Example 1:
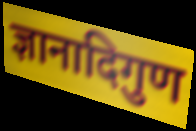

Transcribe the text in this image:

ज्ञानादिगुण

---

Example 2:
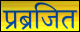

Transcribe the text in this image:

प्रब्रजित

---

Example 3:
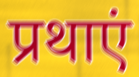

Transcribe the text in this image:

प्रथाएं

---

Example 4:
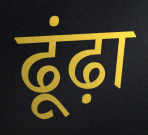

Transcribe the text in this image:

ढूंढ़ा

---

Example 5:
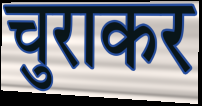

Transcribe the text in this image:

चुराकर